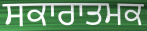
ਸਕਾਰਾਤਮਕ